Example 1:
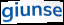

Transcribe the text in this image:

giunse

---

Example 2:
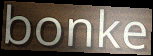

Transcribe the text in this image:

bonke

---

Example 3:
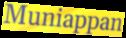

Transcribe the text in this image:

Muniappan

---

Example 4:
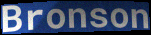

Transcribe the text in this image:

Bronson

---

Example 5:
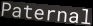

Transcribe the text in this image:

Paternal